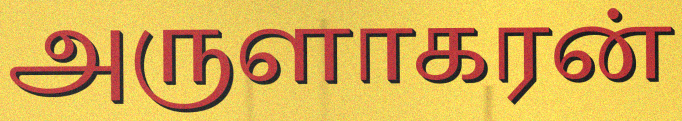
அருளாகரன்